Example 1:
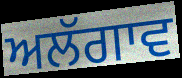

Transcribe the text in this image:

ਅਲੱਗਾਵ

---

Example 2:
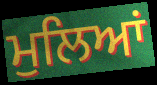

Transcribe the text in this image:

ਮੁਲਿਆਂ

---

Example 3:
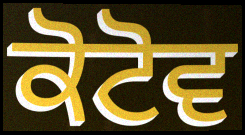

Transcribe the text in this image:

ਕੋਟੋਵ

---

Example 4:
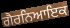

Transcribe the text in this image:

ਗੈਰਨਿਆਇਕ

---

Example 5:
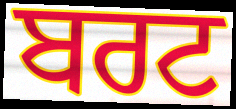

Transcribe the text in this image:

ਬਰਟ